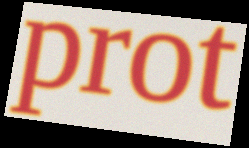
prot